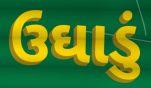
ઉઘાડું